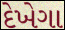
દેખેગા